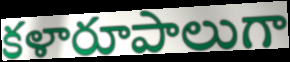
కళారూపాలుగా